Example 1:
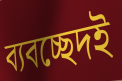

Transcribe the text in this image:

ব্যবচ্ছেদই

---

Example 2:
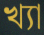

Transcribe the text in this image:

খ্যা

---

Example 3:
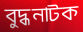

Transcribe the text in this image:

বুদ্ধনাটক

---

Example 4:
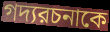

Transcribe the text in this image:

গদ্যরচনাকে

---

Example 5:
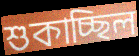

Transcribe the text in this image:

শুকাচ্ছিল